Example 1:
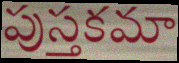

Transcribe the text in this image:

పుస్తకమా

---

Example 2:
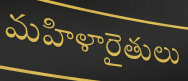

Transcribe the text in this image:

మహిళారైతులు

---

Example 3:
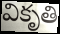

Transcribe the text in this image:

వికృతి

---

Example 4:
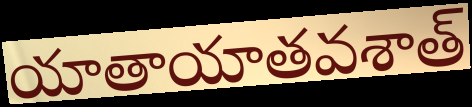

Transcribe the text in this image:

యాతాయాతవశాత్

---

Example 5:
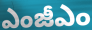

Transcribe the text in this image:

ఎంజీఎం